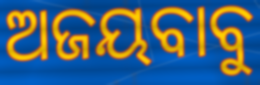
ଅଜୟବାବୁ